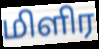
மிளிர